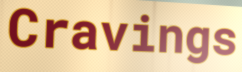
Cravings